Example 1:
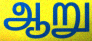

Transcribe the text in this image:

ஆறு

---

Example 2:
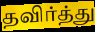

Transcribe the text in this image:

தவிர்த்து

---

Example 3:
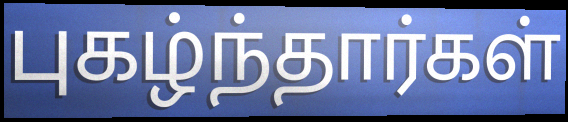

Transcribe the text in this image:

புகழ்ந்தார்கள்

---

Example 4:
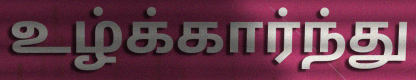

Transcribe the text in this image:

உழ்க்கார்ந்து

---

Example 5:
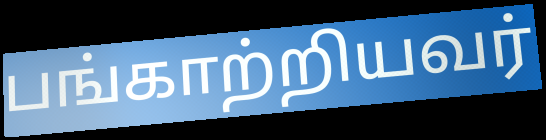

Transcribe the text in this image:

பங்காற்றியவர்